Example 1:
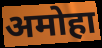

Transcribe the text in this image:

अमोहा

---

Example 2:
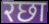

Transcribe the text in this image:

रछा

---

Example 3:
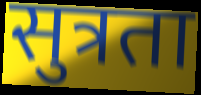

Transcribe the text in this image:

सुत्रता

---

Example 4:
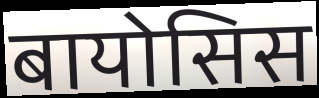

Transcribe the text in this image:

बायोसिस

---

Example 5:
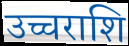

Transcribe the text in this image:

उच्चराशि